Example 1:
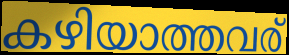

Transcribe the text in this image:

കഴിയാത്തവര്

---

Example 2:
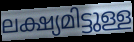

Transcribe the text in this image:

ലക്ഷ്യമിട്ടുള്ള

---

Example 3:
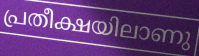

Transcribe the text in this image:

പ്രതീക്ഷയിലാണു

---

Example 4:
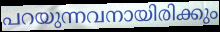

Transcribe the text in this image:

പറയുന്നവനായിരിക്കും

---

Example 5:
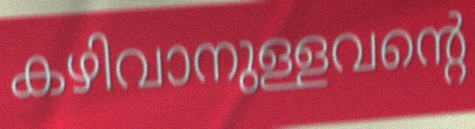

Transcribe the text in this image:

കഴിവാനുള്ളവന്റെ